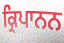
ਕ੍ਰਿਪਾਨਨ